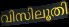
വിസിലൂതി